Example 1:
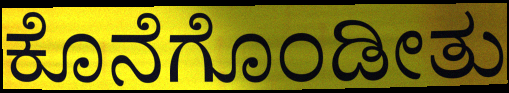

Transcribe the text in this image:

ಕೊನೆಗೊಂಡೀತು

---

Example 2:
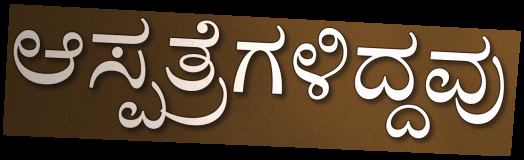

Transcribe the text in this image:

ಆಸ್ಪತ್ರೆಗಳಿದ್ದವು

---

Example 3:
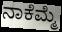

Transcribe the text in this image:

ನಾಕೆಮ್ಮೆ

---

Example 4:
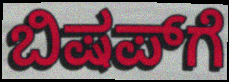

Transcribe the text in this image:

ಬಿಷಪ್‌ಗೆ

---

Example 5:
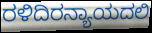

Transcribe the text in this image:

ರಳಿದಿರನ್ಯಾಯದಲಿ